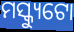
ମସ୍କ୍ୟୁଟୋ